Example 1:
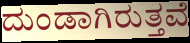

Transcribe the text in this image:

ದುಂಡಾಗಿರುತ್ತವೆ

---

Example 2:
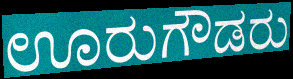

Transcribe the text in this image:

ಊರುಗೌಡರು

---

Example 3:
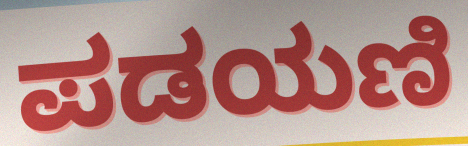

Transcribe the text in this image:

ಪಡಯಣಿ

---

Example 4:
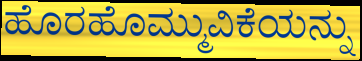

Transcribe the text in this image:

ಹೊರಹೊಮ್ಮುವಿಕೆಯನ್ನು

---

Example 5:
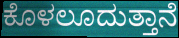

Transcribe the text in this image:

ಕೊಳಲೂದುತ್ತಾನೆ